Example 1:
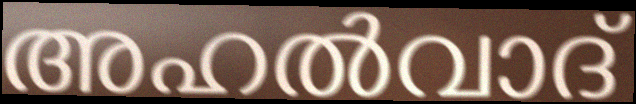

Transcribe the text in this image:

അഹൽവാദ്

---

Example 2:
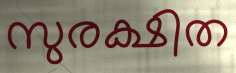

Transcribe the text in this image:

സുരക്ഷിത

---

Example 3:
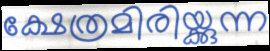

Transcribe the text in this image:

ക്ഷേത്രമിരിയ്ക്കുന്ന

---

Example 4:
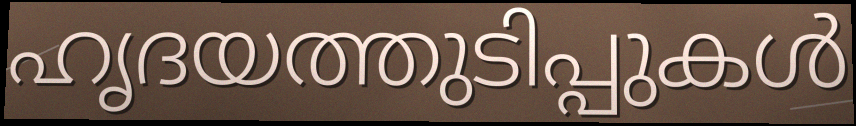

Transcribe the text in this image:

ഹൃദയത്തുടിപ്പുകൾ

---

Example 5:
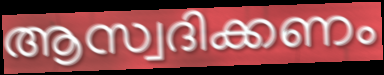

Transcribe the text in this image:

ആസ്വദിക്കണം